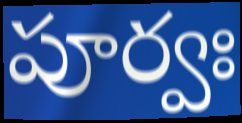
పూర్వః